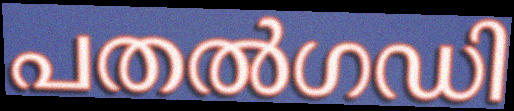
പതൽഗഡി